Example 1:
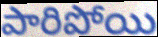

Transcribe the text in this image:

పారిపోయి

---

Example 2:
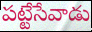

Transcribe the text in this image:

పట్టేసేవాడు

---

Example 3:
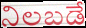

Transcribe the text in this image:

నిలబడే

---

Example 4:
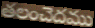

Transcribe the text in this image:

తలంచెదము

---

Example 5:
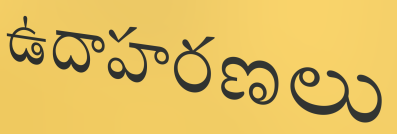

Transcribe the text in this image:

ఉదాహరణలు